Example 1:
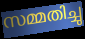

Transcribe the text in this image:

സമ്മതിച്ചു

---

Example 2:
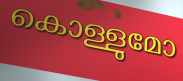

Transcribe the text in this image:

കൊള്ളുമോ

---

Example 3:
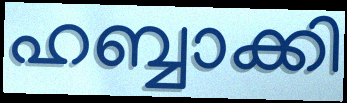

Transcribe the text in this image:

ഹബ്ബാക്കി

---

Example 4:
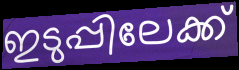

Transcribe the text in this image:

ഇടുപ്പിലേക്ക്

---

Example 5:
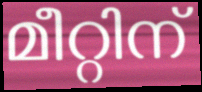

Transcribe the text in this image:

മീറ്റിന്